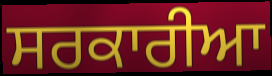
ਸਰਕਾਰੀਆ